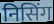
निसिंग